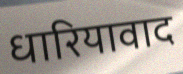
धारियावाद